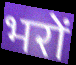
भरों